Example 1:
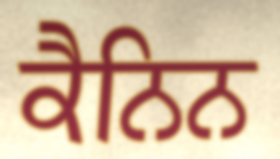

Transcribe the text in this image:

ਕੈਨਿਨ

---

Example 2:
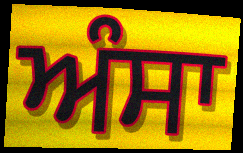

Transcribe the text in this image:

ਅੰਸਾ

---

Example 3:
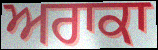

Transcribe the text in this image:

ਅਰਾਕਾ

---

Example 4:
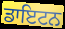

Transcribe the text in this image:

ਡਾਇਟਨ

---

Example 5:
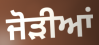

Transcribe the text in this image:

ਜੋਡ਼ੀਆਂ